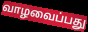
வாழவைப்பது